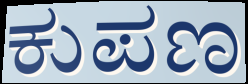
ಕುಪಣ